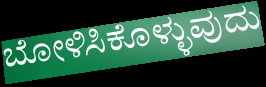
ಬೋಳಿಸಿಕೊಳ್ಳುವುದು